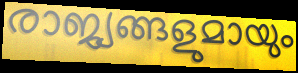
രാജ്യങ്ങളുമായും